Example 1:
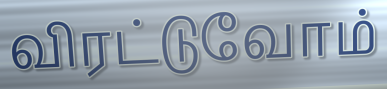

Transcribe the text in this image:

விரட்டுவோம்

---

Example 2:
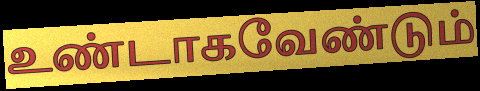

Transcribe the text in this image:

உண்டாகவேண்டும்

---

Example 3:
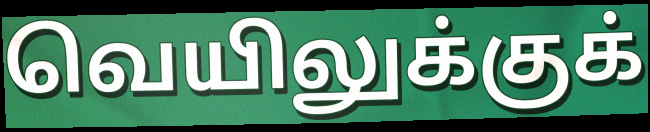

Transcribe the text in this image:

வெயிலுக்குக்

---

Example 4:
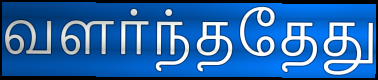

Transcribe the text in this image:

வளர்ந்ததேது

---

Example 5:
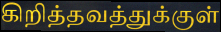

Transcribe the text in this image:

கிறித்தவத்துக்குள்